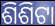
ଶିଶିଟା